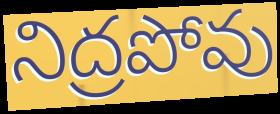
నిద్రపోవు